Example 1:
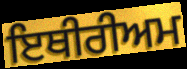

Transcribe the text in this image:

ਇਥੀਰੀਅਮ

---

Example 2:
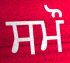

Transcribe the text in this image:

ਸਮੌ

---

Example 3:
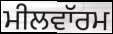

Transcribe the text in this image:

ਮੀਲਵਾੱਰਮ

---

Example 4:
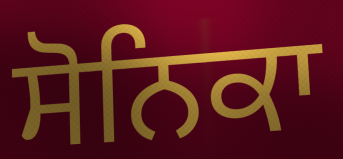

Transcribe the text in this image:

ਸੋਨਿਕਾ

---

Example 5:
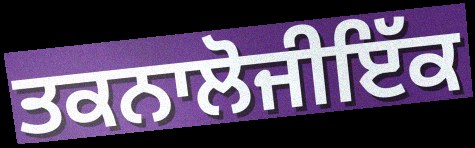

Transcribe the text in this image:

ਤਕਨਾਲੋਜੀਇੱਕ